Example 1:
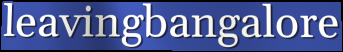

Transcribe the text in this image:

leavingbangalore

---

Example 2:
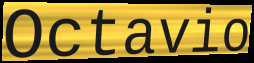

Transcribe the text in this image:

Octavio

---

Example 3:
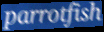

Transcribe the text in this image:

parrotfish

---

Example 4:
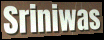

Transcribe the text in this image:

Sriniwas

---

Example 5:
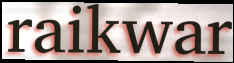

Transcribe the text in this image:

raikwar